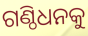
ଗଣ୍ଠିଧନକୁ